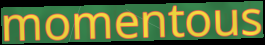
momentous